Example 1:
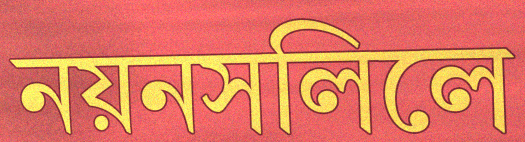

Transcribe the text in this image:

নয়নসলিলে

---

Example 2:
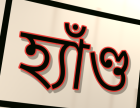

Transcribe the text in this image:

হ্যাঁণ্ড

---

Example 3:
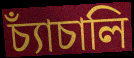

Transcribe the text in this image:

চ্যাঁচালি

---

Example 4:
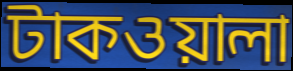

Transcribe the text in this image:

টাকওয়ালা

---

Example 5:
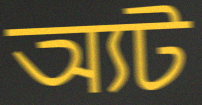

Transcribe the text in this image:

অ্যট